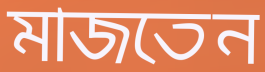
মাজতেন